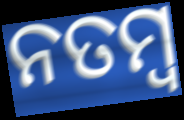
ନତମ୍ବ